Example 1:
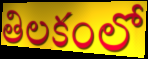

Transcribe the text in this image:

తిలకంలో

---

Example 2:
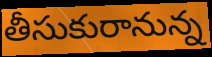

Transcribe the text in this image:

తీసుకురానున్న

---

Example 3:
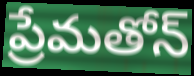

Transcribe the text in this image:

ప్రేమతోన్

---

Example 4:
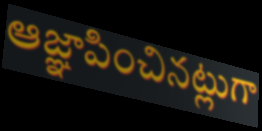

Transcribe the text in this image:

ఆజ్ఞాపించినట్లుగా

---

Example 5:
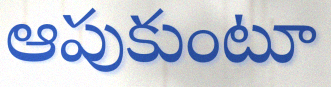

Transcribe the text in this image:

ఆపుకుంటూ